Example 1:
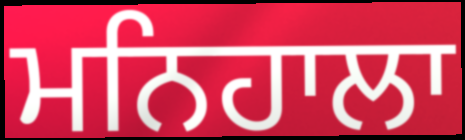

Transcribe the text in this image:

ਮਨਿਹਾਲਾ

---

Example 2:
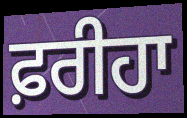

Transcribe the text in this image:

ਫ਼ਰੀਹਾ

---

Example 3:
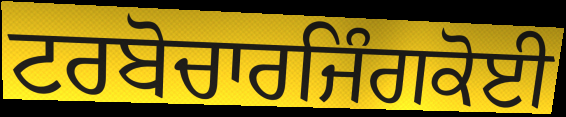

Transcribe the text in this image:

ਟਰਬੋਚਾਰਜਿੰਗਕੋਈ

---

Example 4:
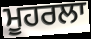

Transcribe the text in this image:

ਮੂਹਰਲਾ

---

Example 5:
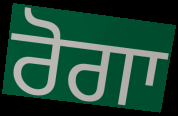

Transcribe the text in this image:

ਰੋਗਾ